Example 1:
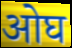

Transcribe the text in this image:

ओघ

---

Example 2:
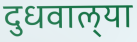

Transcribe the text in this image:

दुधवाल्या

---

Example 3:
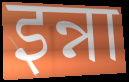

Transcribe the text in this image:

इन्ना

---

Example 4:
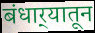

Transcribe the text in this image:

बंधार्यातून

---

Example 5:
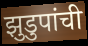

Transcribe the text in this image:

झुडुपांची